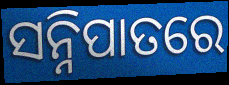
ସନ୍ନିପାତରେ